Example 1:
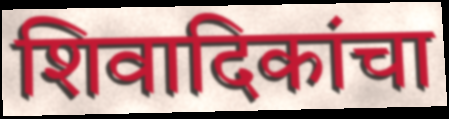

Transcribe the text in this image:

शिवादिकांचा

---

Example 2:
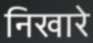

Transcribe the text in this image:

निखारे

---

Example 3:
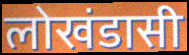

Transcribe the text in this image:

लोखंडासी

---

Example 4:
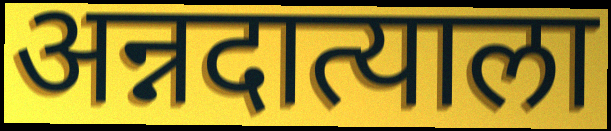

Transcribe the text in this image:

अन्नदात्याला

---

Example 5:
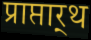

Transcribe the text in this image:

प्राप्तार्थ